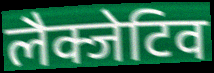
लैक्जेटिव